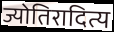
ज्योतिरादित्य